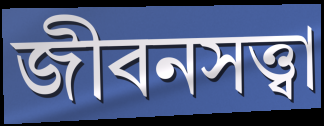
জীবনসত্ত্বা